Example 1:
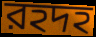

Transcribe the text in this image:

রহদহ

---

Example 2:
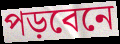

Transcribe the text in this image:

পড়বেনে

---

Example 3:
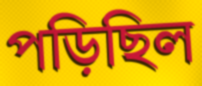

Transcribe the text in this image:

পড়িছিল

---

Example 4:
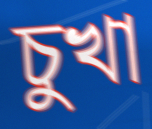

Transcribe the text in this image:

চুখা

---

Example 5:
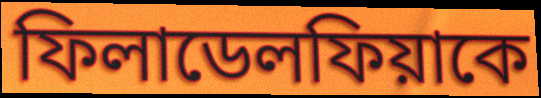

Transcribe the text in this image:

ফিলাডেলফিয়াকে